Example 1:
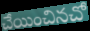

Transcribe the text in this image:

చేయించినచో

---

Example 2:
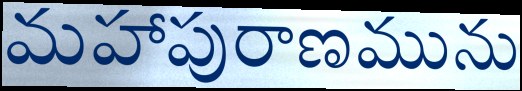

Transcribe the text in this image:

మహాపురాణమును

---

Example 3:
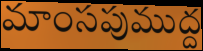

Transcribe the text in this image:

మాంసపుముద్ద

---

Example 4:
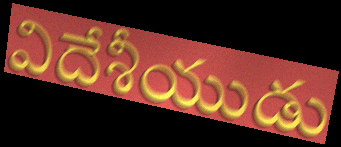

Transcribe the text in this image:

విదేశీయుడు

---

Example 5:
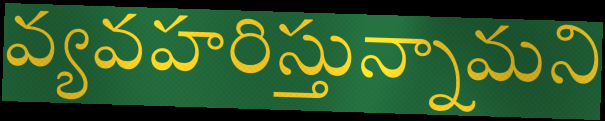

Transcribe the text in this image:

వ్యవహరిస్తున్నామని